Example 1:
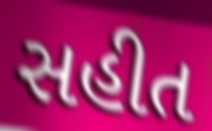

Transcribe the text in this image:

સહીત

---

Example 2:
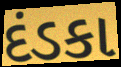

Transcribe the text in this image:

દંડકા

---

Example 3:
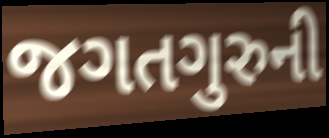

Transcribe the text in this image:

જગતગુરુની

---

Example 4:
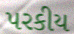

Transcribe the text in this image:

પરકીય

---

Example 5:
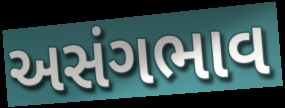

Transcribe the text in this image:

અસંગભાવ